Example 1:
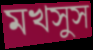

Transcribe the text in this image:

মখসুস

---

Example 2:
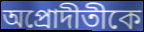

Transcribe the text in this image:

অপ্রোদীতীকে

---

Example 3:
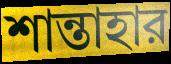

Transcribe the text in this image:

শান্তাহার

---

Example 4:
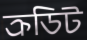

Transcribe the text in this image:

ক্রডিট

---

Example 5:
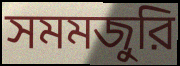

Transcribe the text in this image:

সমমজুরি